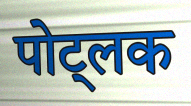
पोट्लक